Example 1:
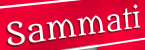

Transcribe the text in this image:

Sammati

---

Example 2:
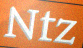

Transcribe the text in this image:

Ntz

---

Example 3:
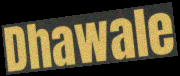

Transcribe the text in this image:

Dhawale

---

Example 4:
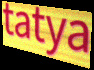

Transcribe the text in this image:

tatya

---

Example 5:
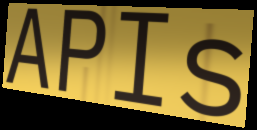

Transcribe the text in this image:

APIs